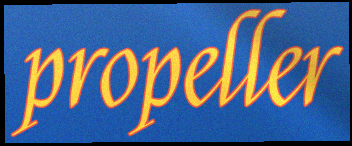
propeller